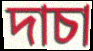
দাচা